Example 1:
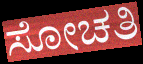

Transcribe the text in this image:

ಸೋಚತಿ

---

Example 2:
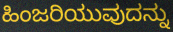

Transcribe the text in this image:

ಹಿಂಜರಿಯುವುದನ್ನು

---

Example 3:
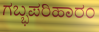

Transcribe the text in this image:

ಗಬ್ಭಪರಿಹಾರಂ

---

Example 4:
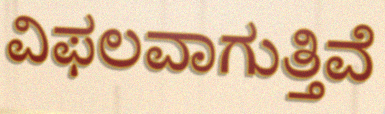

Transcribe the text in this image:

ವಿಫಲವಾಗುತ್ತಿವೆ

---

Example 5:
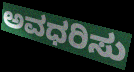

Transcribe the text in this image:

ಅವಧರಿಸು